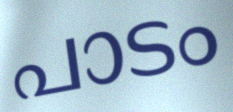
പാടം